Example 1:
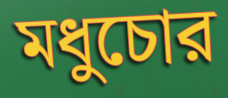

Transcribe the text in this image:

মধুচোর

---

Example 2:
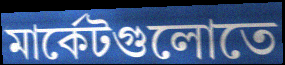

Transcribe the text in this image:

মার্কেটগুলোতে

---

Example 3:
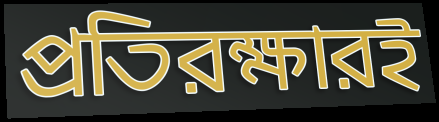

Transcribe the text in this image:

প্রতিরক্ষারই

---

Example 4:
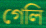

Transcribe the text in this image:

গেলি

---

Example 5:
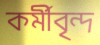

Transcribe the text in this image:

কর্মীবৃন্দ